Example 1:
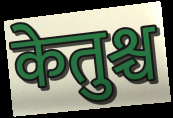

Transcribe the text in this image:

केतुश्च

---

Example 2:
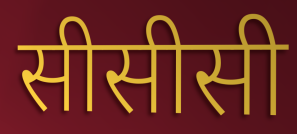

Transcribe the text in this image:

सीसीसी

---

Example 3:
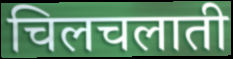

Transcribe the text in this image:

चिलचलाती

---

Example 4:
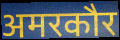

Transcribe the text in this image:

अमरकौर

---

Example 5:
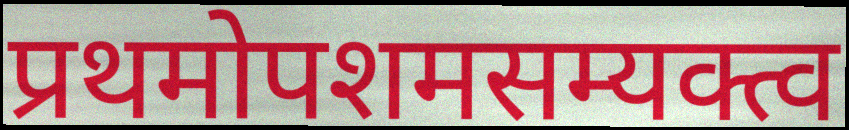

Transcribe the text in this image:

प्रथमोपशमसम्यक्त्व